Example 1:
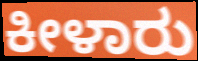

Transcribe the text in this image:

ಕೀಳಾರು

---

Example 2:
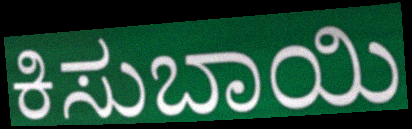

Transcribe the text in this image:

ಕಿಸುಬಾಯಿ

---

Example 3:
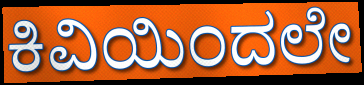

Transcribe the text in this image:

ಕಿವಿಯಿಂದಲೇ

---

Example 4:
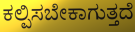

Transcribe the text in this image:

ಕಲ್ಪಿಸಬೇಕಾಗುತ್ತದೆ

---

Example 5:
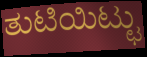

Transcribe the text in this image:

ತುಟಿಯಿಟ್ಟು